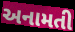
અનામતી